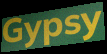
Gypsy